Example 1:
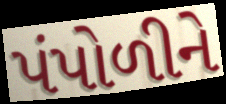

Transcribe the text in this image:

પંપોળીને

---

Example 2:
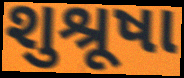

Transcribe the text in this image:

શુશ્રૂષા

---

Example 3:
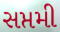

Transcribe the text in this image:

સપ્તમી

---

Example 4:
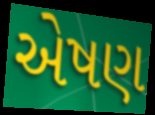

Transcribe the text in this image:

એષણ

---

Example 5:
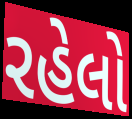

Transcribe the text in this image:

રહેલો